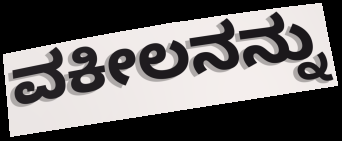
ವಕೀಲನನ್ನು